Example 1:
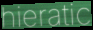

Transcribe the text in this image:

hieratic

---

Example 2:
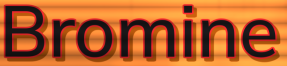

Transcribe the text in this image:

Bromine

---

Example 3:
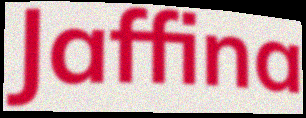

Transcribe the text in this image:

Jaffina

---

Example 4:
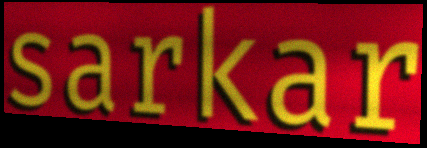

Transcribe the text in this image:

sarkar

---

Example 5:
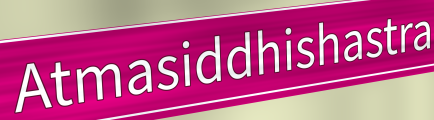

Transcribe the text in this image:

Atmasiddhishastra